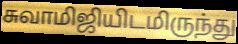
சுவாமிஜியிடமிருந்து